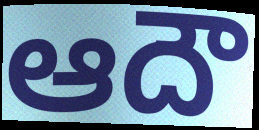
ఆదౌ